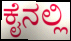
ಕೈನಲ್ಲಿ